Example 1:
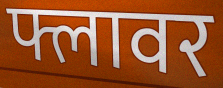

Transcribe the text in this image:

फ्लावर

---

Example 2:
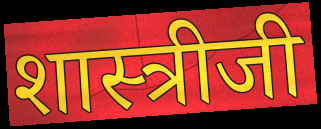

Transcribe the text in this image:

शास्त्रीजी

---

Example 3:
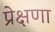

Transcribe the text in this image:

प्रेक्षणा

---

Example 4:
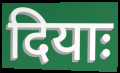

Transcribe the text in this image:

दियाः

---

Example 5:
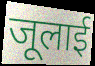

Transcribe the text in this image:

जूलाई